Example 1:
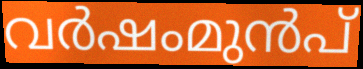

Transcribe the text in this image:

വർഷംമുൻപ്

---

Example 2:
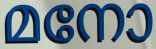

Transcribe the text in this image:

മനോ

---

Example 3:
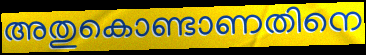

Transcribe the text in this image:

അതുകൊണ്ടാണതിനെ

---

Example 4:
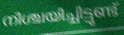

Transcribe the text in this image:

നിശ്ചയിച്ചിട്ടുണ്ട്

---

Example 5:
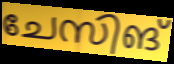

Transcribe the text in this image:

ചേസിങ്